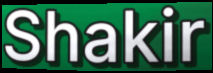
Shakir